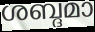
ശബ്ദമാ